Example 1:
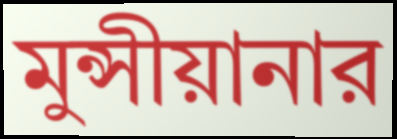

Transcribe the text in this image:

মুন্সীয়ানার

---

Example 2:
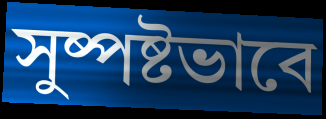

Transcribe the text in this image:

সুষ্পষ্টভাবে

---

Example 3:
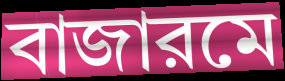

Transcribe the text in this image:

বাজারমে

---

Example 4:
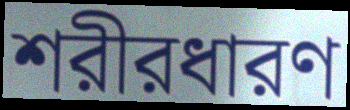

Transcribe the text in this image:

শরীরধারণ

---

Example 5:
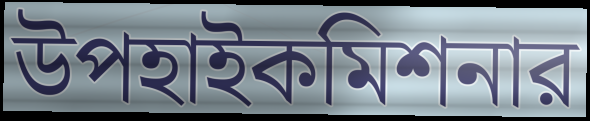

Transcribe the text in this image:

উপহাইকমিশনার